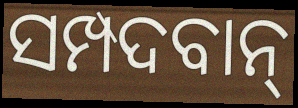
ସମ୍ପଦବାନ୍